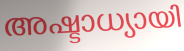
അഷ്ടാധ്യായി